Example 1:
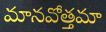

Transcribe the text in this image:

మానవోత్తమా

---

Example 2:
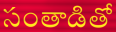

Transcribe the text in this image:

సంతాడితో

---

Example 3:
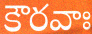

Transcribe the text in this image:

కౌరవాః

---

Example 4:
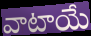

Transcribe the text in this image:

వాటాయే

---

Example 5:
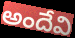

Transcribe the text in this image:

అందేవి